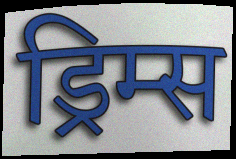
ड्रिम्स